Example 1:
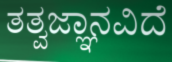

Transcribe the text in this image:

ತತ್ವಜ್ಞಾನವಿದೆ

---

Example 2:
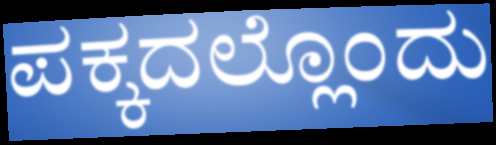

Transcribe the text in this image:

ಪಕ್ಕದಲ್ಲೊಂದು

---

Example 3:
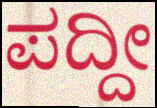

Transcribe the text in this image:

ಪದ್ದೀ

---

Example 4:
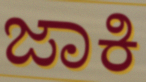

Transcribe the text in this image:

ಜಾಕಿ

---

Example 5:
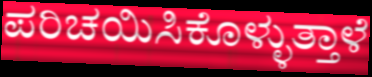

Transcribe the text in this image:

ಪರಿಚಯಿಸಿಕೊಳ್ಳುತ್ತಾಳೆ